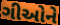
ગીઓને